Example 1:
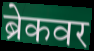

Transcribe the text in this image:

ब्रेकवर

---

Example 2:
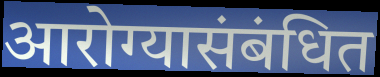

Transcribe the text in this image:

आरोग्यासंबंधित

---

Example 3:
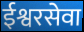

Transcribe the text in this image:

ईश्वरसेवा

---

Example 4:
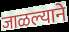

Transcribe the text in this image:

जाळल्याने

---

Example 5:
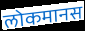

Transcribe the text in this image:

लोकमानस